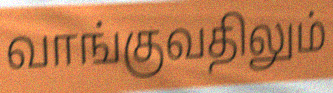
வாங்குவதிலும்